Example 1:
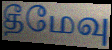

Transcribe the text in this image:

தீமேவு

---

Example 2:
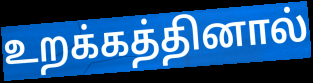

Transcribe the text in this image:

உறக்கத்தினால்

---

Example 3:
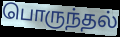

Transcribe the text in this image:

பொருந்தல்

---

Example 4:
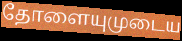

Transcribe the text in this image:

தோளையுமுடைய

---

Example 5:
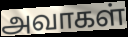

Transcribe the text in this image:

அவாகள்